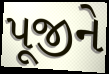
પૂજીને